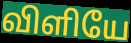
விளியே